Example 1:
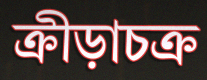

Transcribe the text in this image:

ক্রীড়াচক্র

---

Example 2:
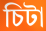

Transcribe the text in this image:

চিটা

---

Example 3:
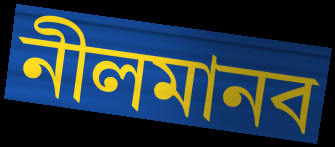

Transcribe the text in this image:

নীলমানব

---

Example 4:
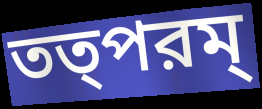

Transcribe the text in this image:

তত্পরম্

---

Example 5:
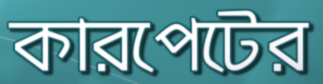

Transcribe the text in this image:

কারপেটের